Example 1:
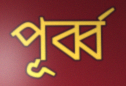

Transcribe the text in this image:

পূৰ্ব্ব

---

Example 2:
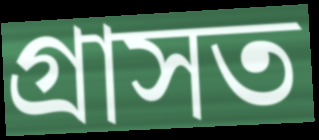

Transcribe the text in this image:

গ্ৰাসত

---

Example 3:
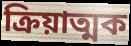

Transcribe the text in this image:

ক্ৰিয়াত্মক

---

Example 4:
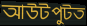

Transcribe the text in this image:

আউটপুটত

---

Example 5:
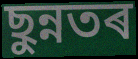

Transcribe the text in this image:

ছুন্নতৰ